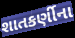
શાતકર્ણીના